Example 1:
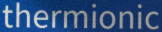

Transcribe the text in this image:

thermionic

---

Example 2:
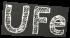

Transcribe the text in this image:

UFe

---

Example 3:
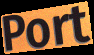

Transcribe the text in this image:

Port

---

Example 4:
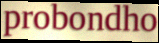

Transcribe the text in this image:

probondho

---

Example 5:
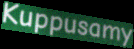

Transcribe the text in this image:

Kuppusamy